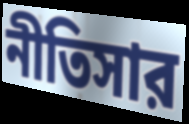
নীতিসার